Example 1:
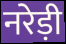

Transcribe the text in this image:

नरेड़ी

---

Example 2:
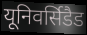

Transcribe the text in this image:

यूनिवर्सिडैड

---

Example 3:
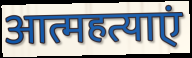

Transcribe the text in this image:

आत्महत्याएं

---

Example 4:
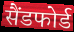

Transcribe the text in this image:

सैंडफोर्ड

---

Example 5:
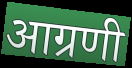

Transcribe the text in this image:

आग्रणी